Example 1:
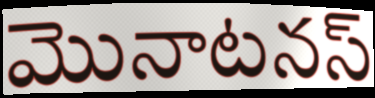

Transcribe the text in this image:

మొనాటనస్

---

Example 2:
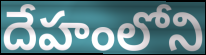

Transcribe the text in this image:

దేహంలోని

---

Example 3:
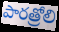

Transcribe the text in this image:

పారత్రోలి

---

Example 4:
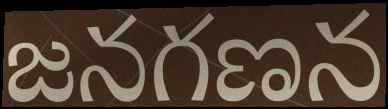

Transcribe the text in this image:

జనగణన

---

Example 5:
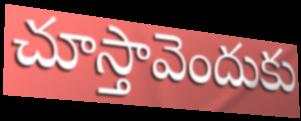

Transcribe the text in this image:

చూస్తావెందుకు